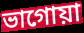
ভাগোয়া